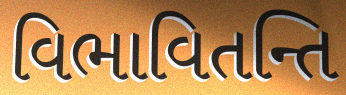
વિભાવિતન્તિ